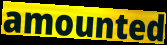
amounted